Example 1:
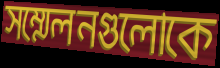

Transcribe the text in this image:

সম্মেলনগুলোকে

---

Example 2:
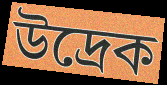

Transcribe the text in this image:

উদ্রেক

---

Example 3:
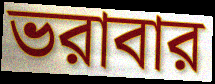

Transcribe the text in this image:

ভরাবার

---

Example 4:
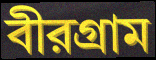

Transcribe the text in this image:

বীরগ্রাম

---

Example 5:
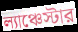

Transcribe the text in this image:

ল্যাঞ্চেস্টার